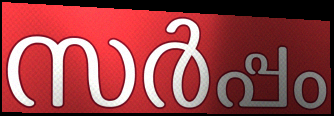
സർപ്പം